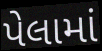
પેલામાં